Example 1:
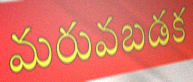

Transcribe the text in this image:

మరువబడక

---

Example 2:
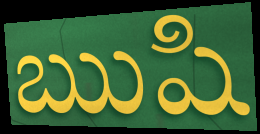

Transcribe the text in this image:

ఋషి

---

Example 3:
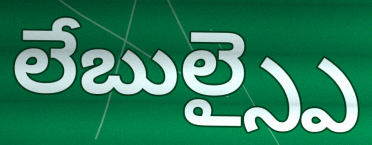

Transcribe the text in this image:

లేబుల్స్పై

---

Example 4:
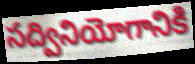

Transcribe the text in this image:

సద్వినియోగానికి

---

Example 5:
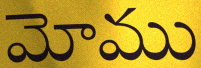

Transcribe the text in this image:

మోము